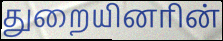
துறையினரின்